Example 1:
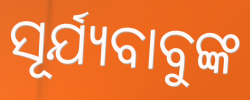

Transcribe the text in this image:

ସୂର୍ଯ୍ୟବାବୁଙ୍କ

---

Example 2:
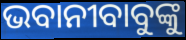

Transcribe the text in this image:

ଭବାନୀବାବୁଙ୍କୁ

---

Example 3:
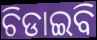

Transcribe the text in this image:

ଚିଡାଇବି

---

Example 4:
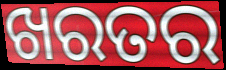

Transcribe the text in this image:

ଖରତର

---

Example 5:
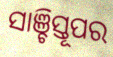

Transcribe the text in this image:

ସାଞ୍ଚିସ୍ତୂପର